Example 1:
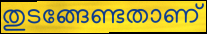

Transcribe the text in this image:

തുടങ്ങേണ്ടതാണ്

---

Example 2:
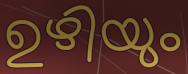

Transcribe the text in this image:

ഉഴിയും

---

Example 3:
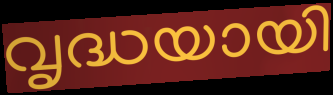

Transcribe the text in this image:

വൃദ്ധയായി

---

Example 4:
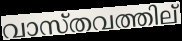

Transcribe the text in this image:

വാസ്തവത്തില്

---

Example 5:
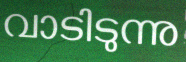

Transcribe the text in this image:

വാടിടുന്നു